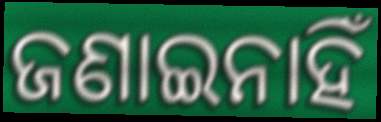
ଜଣାଇନାହିଁ